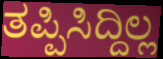
ತಪ್ಪಿಸಿದ್ದಿಲ್ಲ